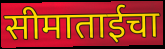
सीमाताईचा